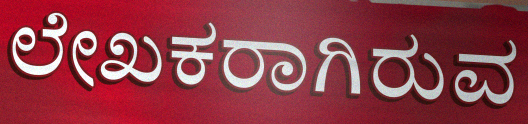
ಲೇಖಕರಾಗಿರುವ